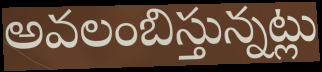
అవలంబిస్తున్నట్లు